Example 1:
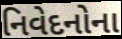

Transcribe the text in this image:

નિવેદનોના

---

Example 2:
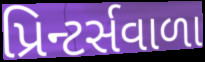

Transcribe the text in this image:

પ્રિન્ટર્સવાળા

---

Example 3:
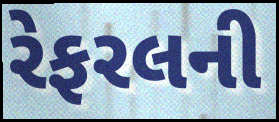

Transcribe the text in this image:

રેફરલની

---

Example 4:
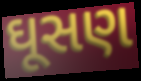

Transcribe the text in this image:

ઘૂસણ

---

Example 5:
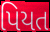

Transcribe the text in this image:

પિયત